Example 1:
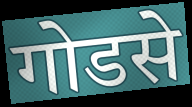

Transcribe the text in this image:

गोडसे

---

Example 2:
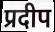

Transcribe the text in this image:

प्रदीप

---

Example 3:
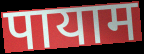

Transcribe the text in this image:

पायाम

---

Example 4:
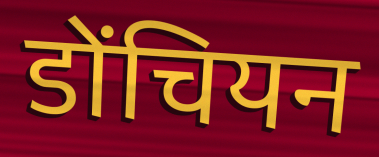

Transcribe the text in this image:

डोंचियन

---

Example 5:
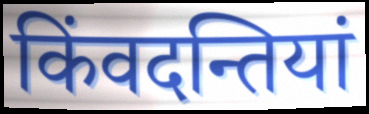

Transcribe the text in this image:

किंवदन्तियां